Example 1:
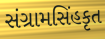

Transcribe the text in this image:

સંગ્રામસિંહકૃત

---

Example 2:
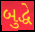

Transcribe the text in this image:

બુદ્ધે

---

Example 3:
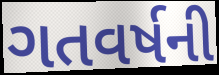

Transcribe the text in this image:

ગતવર્ષની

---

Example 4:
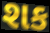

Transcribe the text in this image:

શક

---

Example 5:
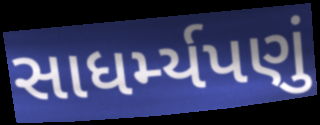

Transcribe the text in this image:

સાધર્મ્યપણું